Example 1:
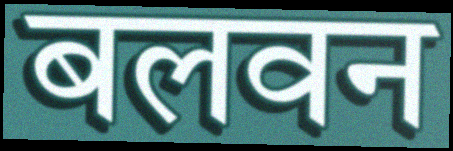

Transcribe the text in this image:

बलवन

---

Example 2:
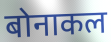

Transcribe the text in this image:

बोनाकल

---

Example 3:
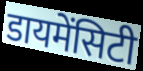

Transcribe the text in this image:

डायमेंसिटी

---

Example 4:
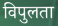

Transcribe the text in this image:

विपुलता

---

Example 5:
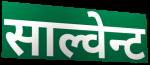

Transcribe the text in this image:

साल्वेन्ट